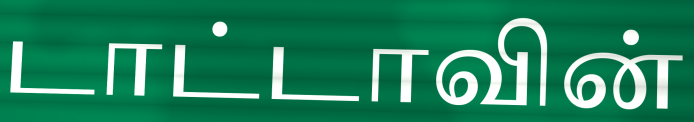
டாட்டாவின்